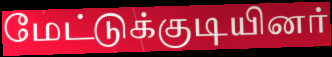
மேட்டுக்குடியினர்